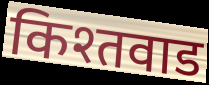
किश्तवाड